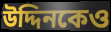
উদ্দিনকেও